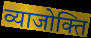
व्याजोक्ति